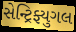
સેન્ટ્રિફ્યુગલ